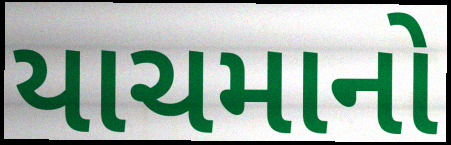
યાચમાનો